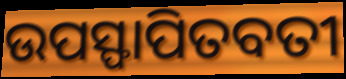
ଉପସ୍ଫାପିତବତୀ